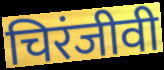
चिरंजीवी